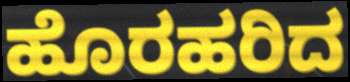
ಹೊರಹರಿದ